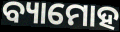
ବ୍ୟାମୋହ